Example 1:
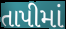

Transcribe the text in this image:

તાપીમાં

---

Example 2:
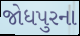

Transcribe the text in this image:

જોધપુરના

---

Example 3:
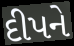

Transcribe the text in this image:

દીપને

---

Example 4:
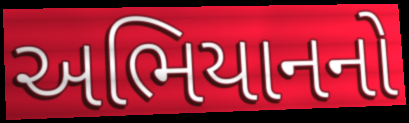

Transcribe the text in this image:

અભિયાનનો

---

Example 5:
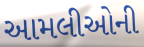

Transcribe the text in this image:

આમલીઓની